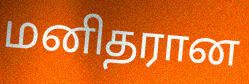
மனிதரான